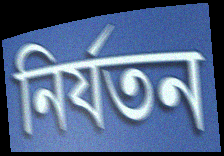
নির্যতন